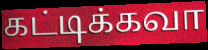
கட்டிக்கவா